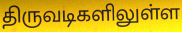
திருவடிகளிலுள்ள